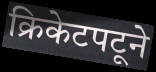
क्रिकेटपटूने